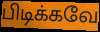
பிடிக்கவே